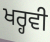
ਖਰ੍ਹਵੀ